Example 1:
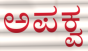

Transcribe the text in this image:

ಅಪಕ್ವ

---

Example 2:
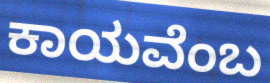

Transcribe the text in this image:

ಕಾಯವೆಂಬ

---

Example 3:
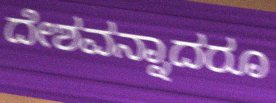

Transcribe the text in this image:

ದೇಶವನ್ನಾದರೂ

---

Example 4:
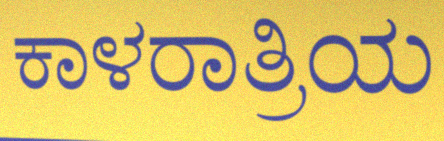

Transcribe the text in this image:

ಕಾಳರಾತ್ರಿಯ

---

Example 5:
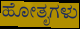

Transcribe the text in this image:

ಹೋತೃಗಳು